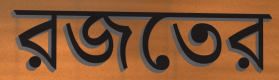
রজতের